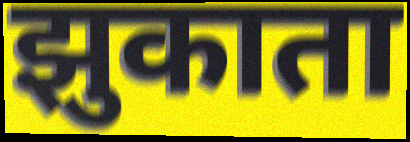
झुकाता